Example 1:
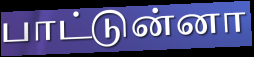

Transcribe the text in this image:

பாட்டுன்னா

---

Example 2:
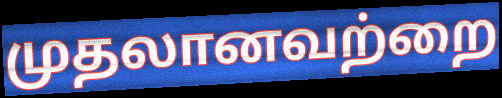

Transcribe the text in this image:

முதலானவற்றை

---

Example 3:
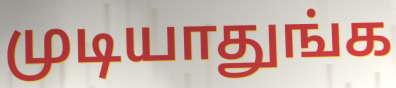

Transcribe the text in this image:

முடியாதுங்க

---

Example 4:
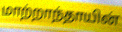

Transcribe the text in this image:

மாற்றாந்தாயின்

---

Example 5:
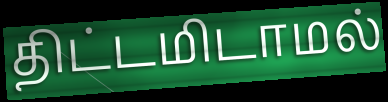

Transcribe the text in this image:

திட்டமிடாமல்